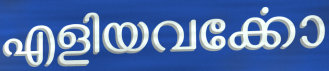
എളിയവൎക്കോ